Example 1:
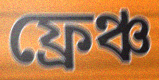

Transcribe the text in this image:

ফ্রেঞ্চ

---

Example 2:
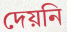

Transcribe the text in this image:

দেয়নি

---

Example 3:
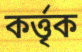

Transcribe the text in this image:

কর্ত্তৃক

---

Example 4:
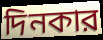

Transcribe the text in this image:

দিনকার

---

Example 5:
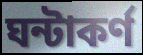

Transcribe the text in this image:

ঘন্টাকর্ণ